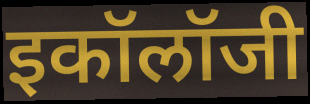
इकॉलॉजी